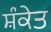
ਸ਼ੰਕੇਤ